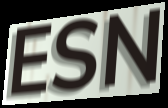
ESN